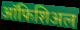
ऑफिशिअल